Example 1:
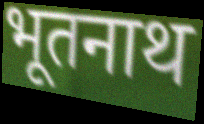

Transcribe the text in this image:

भूतनाथ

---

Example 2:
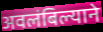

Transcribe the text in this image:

अवलंबिल्याने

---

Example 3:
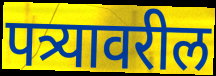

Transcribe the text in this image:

पत्र्यावरील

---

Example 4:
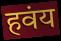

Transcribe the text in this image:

हवंय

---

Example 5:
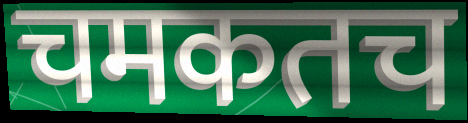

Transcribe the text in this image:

चमकतच